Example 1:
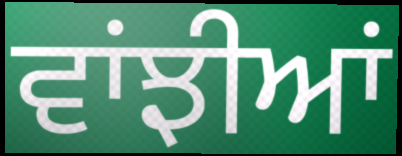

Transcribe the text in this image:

ਵਾਂਝੀਆਂ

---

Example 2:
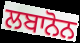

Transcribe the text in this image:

ਲਬਾਨੋਨ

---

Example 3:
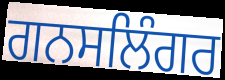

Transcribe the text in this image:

ਗਨਸਲਿੰਗਰ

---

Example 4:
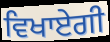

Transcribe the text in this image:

ਵਿਖਾਏਗੀ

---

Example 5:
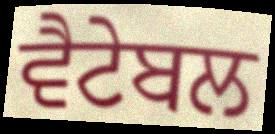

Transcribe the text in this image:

ਵੈਟੇਬਲ